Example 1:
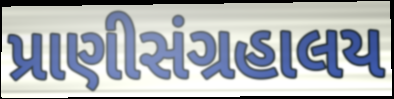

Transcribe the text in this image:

પ્રાણીસંગ્રહાલય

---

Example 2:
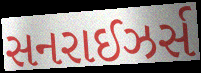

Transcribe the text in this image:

સનરાઈઝર્સ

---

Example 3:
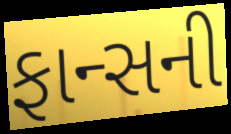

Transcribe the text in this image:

ફાન્સની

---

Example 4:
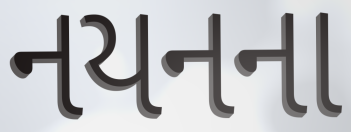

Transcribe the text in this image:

નયનના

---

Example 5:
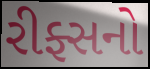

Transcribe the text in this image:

રીફ્સનો